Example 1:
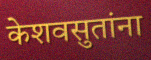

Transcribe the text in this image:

केशवसुतांना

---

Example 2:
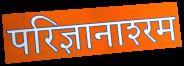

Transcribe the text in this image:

परिज्ञानाश्रम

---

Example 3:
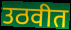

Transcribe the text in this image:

उठवीत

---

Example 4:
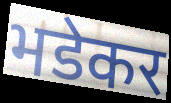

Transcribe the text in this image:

भडेकर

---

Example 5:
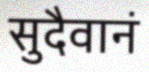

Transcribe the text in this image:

सुदैवानं